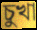
চুখা